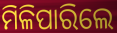
ମିଳିପାରିଲେ